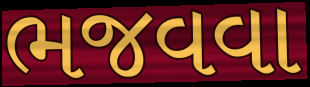
ભજવવા